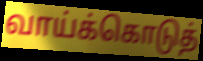
வாய்க்கொடுத்